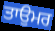
ਤਾਉਮਰ